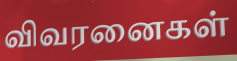
விவரனைகள்